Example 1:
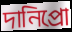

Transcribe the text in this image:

দানিপ্রো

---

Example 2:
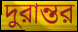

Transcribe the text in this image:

দুরান্তর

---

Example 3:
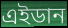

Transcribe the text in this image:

এইডান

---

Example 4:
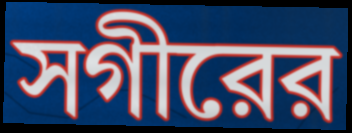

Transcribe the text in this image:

সগীরের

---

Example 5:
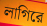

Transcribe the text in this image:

লাগিরে